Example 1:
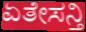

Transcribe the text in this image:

ಏತೇಸನ್ತಿ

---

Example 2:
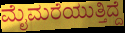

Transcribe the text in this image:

ಮೈಮರೆಯುತ್ತಿದ್ದೆ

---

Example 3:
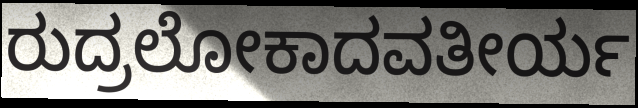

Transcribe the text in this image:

ರುದ್ರಲೋಕಾದವತೀರ್ಯ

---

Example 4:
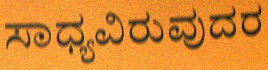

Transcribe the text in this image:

ಸಾಧ್ಯವಿರುವುದರ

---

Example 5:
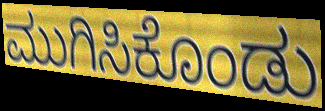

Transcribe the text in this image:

ಮುಗಿಸಿಕೊಂಡು